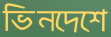
ভিনদেশে